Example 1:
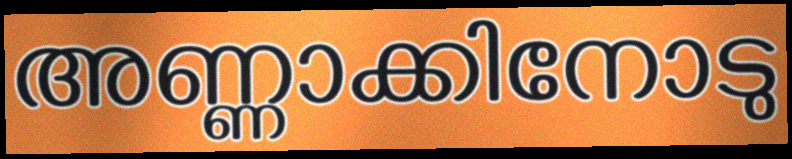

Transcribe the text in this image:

അണ്ണാക്കിനോടു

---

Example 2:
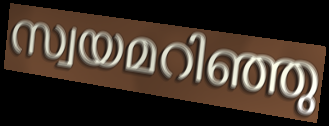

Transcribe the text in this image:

സ്വയമറിഞ്ഞു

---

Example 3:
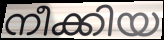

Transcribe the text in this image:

നീക്കിയ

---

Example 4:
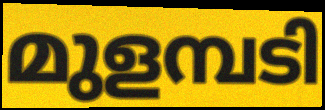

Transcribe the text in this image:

മുളമ്പടി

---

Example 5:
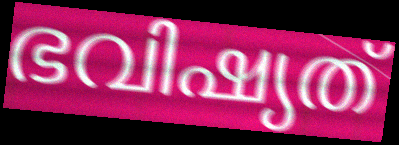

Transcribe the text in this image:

ഭവിഷ്യത്